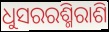
ଧୁସରରଶ୍ମିରାଶି